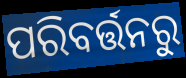
ପରିବର୍ତ୍ତନରୁ